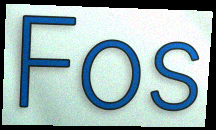
Fos